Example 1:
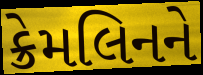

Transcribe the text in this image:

ક્રેમલિનને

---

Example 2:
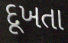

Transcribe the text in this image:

દૂખતા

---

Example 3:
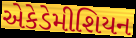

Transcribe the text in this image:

એકેડેમીશિયન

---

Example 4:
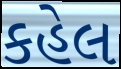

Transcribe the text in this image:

કહેલ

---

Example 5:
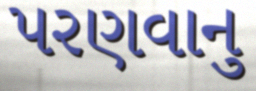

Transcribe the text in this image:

પરણવાનુ